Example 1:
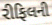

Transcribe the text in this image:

રીફિલની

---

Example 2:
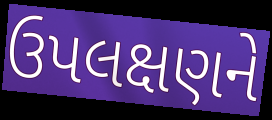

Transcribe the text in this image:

ઉપલક્ષણને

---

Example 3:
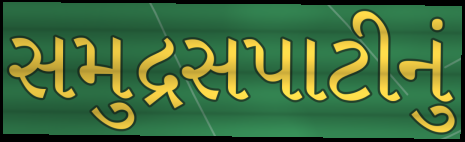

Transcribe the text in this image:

સમુદ્રસપાટીનું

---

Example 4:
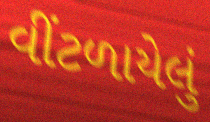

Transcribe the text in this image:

વીંટળાયેલું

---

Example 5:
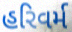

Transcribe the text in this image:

હરિવર્મ